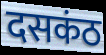
दसकंठ